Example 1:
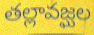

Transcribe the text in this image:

తల్లావజ్ఘల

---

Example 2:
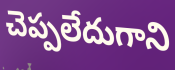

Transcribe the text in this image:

చెప్పలేదుగాని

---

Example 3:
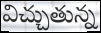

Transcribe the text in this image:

విచ్చుతున్న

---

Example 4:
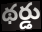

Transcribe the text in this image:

థర్డు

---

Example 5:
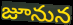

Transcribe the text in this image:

జూనున